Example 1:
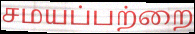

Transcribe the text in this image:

சமயப்பற்றை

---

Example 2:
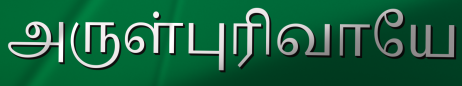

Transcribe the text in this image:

அருள்புரிவாயே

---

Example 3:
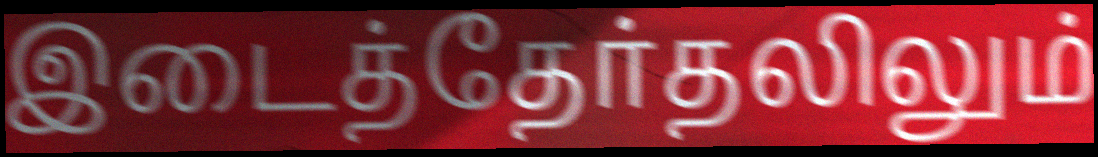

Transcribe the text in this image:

இடைத்தேர்தலிலும்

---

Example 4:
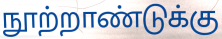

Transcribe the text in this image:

நூற்றாண்டுக்கு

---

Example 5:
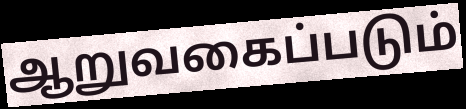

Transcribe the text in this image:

ஆறுவகைப்படும்